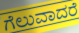
ಗೆಲುವಾದರೆ